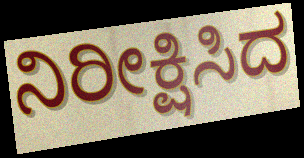
ನಿರೀಕ್ಷಿಸಿದ